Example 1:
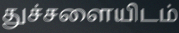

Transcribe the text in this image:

துச்சளையிடம்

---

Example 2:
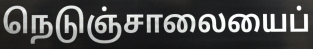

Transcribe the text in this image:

நெடுஞ்சாலையைப்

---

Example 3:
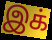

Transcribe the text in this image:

இக்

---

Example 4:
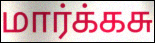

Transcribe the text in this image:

மார்க்கசு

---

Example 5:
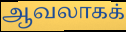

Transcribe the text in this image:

ஆவலாகக்